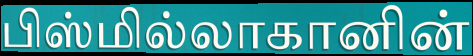
பிஸ்மில்லாகானின்